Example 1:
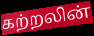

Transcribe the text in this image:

கற்றலின்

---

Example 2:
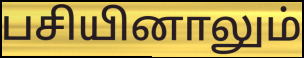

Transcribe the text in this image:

பசியினாலும்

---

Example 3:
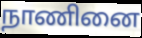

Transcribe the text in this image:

நாணினை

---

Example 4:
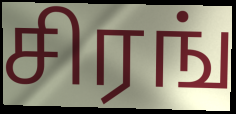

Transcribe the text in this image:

சிரங்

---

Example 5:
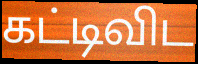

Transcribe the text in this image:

கட்டிவிட